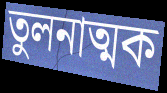
তুলনাত্মক